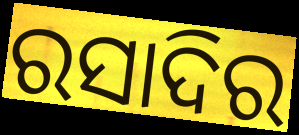
ରସାଦିର